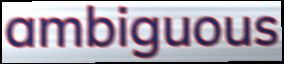
ambiguous